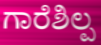
ಗಾರೆಶಿಲ್ಪ